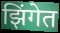
झिंगेत